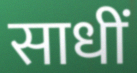
साधीं